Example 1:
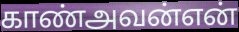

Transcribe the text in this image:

காண்அவன்என்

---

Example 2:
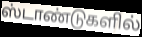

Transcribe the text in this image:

ஸ்டாண்டுகளில்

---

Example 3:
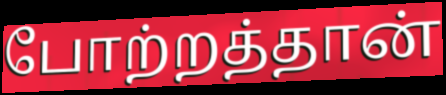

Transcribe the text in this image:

போற்றத்தான்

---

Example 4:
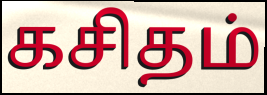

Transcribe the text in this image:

கசிதம்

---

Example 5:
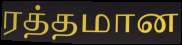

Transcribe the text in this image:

ரத்தமான